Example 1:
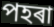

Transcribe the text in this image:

পহৰা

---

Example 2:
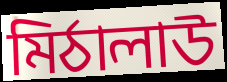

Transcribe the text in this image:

মিঠালাউ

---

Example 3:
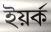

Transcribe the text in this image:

ইয়ৰ্ক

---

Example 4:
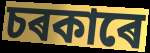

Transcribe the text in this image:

চৰকাৰে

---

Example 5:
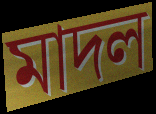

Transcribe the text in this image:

মাদল